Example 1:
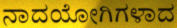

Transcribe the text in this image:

ನಾದಯೋಗಿಗಳಾದ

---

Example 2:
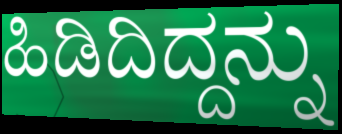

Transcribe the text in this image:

ಹಿಡಿದಿದ್ದನ್ನು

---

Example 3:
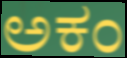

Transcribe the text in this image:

ಅಕಂ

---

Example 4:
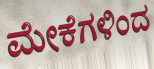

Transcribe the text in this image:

ಮೇಕೆಗಳಿಂದ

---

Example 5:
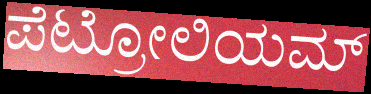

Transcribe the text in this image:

ಪೆಟ್ರೋಲಿಯಮ್